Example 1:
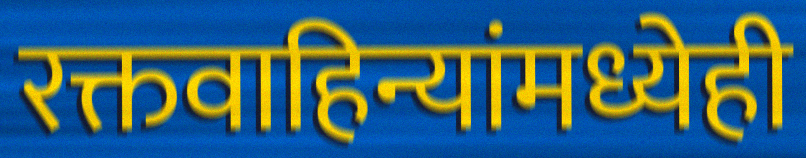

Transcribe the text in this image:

रक्तवाहिन्यांमध्येही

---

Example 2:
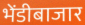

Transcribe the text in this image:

भेंडीबाजार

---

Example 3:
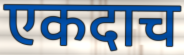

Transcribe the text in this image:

एकदाच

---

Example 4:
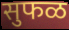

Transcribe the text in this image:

सुफळ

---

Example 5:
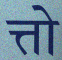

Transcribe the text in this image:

त्तो